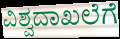
ವಿಶ್ವದಾಖಲೆಗೆ